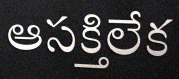
ఆసక్తిలేక